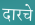
दारचे